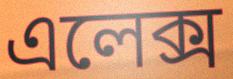
এলেক্স